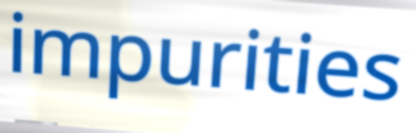
impurities